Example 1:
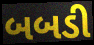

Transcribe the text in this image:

બબડી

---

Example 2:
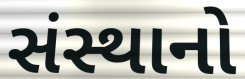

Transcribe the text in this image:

સંસ્થાનો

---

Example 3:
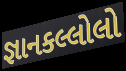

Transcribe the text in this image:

જ્ઞાનકલ્લોલો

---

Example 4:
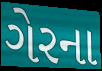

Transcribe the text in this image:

ગેરના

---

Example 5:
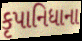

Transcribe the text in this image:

કૃપાનિધાના